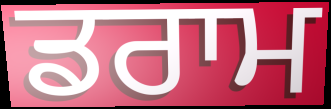
ਡਰਾਮ